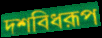
দশবিধরূপ